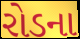
રોડના